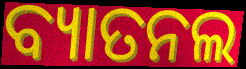
ବ୍ୟାତନଲ